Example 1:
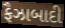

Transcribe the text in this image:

ફૈઝાબાદી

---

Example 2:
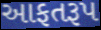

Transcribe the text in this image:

આફતરૂપ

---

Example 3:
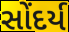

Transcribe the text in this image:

સોંદર્ય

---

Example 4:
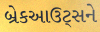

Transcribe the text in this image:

બ્રેકઆઉટ્સને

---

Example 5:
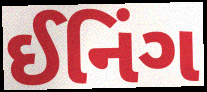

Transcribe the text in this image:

ઈનિંગ